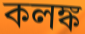
কলঙ্ক